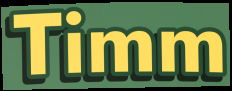
Timm